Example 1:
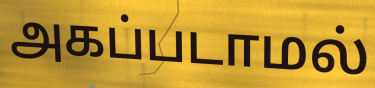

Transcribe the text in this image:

அகப்படாமல்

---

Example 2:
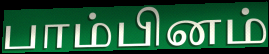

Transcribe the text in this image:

பாம்பினம்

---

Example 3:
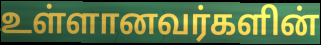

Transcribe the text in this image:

உள்ளானவர்களின்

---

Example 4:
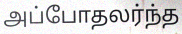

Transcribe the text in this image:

அப்போதலர்ந்த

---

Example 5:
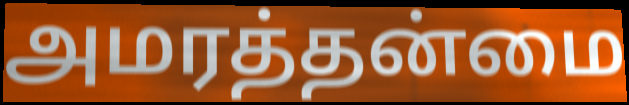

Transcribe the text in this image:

அமரத்தன்மை